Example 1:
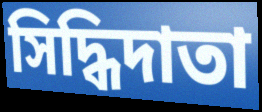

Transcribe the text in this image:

সিদ্ধিদাতা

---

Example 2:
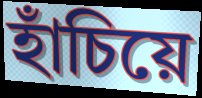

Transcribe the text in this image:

হাঁচিয়ে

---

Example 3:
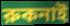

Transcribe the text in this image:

রুকনাই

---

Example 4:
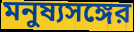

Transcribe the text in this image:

মনুষ্যসঙ্গের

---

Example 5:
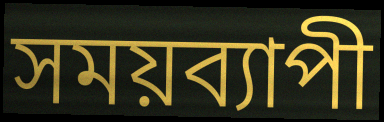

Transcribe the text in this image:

সময়ব্যাপী